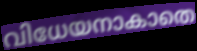
വിധേയനാകാതെ